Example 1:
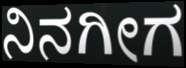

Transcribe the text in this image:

ನಿನಗೀಗ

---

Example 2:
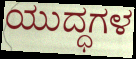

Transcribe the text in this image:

ಯುದ್ಧಗಳ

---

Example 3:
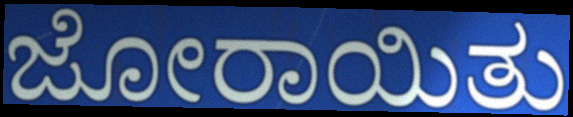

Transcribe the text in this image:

ಜೋರಾಯಿತು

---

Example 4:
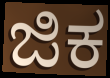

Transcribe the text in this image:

ಜಿಕ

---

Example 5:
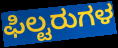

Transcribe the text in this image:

ಫಿಲ್ಟರುಗಳ